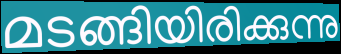
മടങ്ങിയിരിക്കുന്നു